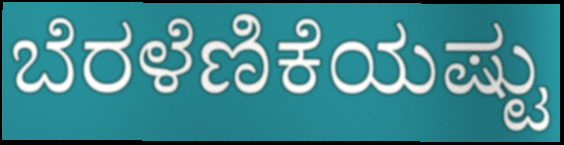
ಬೆರಳೆಣಿಕೆಯಷ್ಟು